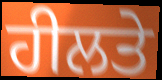
ਹੀਲਤੇ